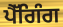
ਪੈੱਗਿੰਗ